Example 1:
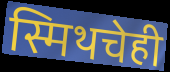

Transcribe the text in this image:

स्मिथचेही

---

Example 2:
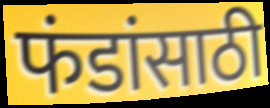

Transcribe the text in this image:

फंडांसाठी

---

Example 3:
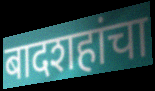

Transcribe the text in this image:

बादशहांचा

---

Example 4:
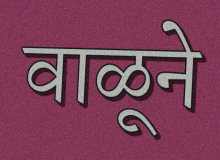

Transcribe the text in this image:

वाळूने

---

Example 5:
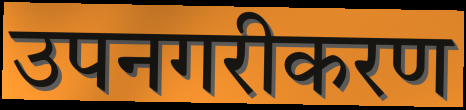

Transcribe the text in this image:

उपनगरीकरण